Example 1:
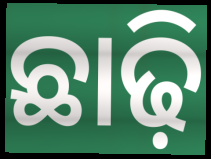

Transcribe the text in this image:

ଛାଢ଼ି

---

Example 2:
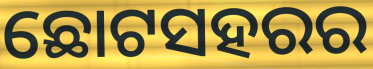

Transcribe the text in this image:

ଛୋଟସହରର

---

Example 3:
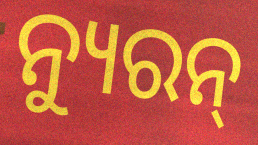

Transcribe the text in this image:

ନ୍ୟୁରନ୍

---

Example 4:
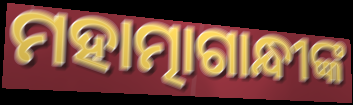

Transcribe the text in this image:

ମହାତ୍ମାଗାନ୍ଧୀଙ୍କ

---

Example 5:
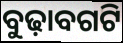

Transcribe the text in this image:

ବୁଢ଼ାବଗଟି